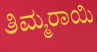
ತಿಮ್ಮರಾಯಿ